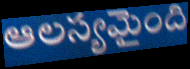
ఆలస్యమైంది